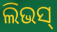
ଲିଭସ୍